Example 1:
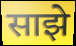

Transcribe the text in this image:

साझे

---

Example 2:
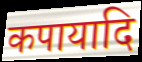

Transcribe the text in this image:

कपायादि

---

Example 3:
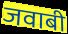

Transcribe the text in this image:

जवाबी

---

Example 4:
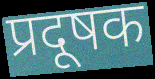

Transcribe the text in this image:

प्रदूषक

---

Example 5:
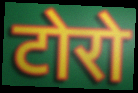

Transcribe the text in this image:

टोरो